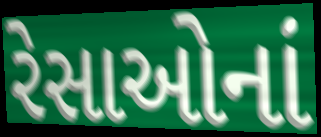
રેસાઓનાં